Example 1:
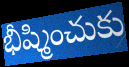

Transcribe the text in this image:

భీష్మించుకు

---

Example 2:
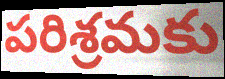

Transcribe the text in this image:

పరిశ్రమకు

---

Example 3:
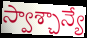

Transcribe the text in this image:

స్వాశ్చాన్యే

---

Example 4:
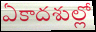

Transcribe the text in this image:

ఏకాదశుల్లో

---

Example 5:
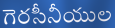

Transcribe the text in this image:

గెరసీనీయుల